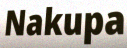
Nakupa